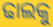
ଢାଲକୁ